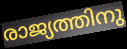
രാജ്യത്തിനു